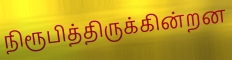
நிரூபித்திருக்கின்றன